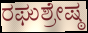
ರಘುಶ್ರೇಷ್ಠ